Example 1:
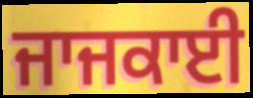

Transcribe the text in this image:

ਜਾਜਕਾਈ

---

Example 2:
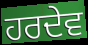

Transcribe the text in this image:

ਹਰਦੇਵ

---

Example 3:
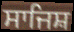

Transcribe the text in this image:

ਸਾਜਿਸ਼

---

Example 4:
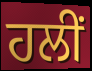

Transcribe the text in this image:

ਹਲੀਂ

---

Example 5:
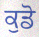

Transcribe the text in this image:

ਕੁਡੋ